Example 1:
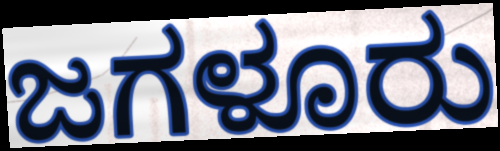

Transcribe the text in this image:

ಜಗಳೂರು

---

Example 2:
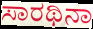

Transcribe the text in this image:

ಸಾರಥಿನಾ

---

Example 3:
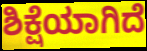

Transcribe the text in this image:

ಶಿಕ್ಷೆಯಾಗಿದೆ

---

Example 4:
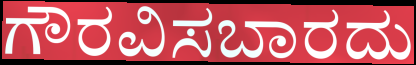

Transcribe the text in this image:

ಗೌರವಿಸಬಾರದು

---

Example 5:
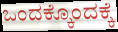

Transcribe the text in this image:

ಒಂದಕ್ಕೊಂದಕ್ಕೆ